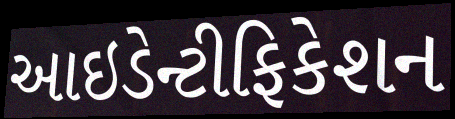
આઇડેન્ટીફિકેશન